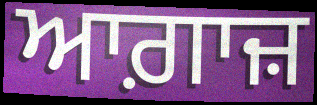
ਆਗ਼ਾਜ਼